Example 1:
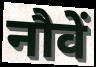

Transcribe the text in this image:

नौवें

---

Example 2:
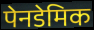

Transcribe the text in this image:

पेनडेमिक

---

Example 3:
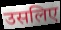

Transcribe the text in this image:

उसलिए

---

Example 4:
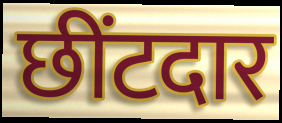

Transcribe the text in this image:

छींटदार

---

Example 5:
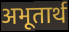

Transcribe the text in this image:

अभूतार्थ